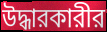
উদ্ধারকারীর